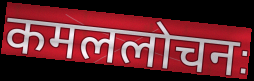
कमललोचनः